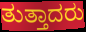
ತುತ್ತಾದರು